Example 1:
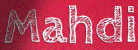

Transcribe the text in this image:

Mahdi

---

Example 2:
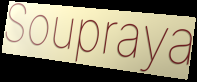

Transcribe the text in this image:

Soupraya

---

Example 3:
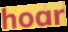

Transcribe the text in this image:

hoar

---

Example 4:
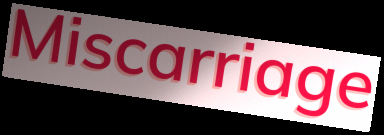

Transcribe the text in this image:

Miscarriage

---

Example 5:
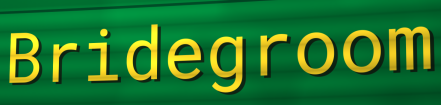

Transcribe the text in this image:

Bridegroom